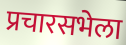
प्रचारसभेला